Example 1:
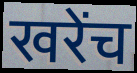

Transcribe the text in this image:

खरेंच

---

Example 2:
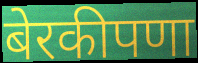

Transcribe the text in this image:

बेरकीपणा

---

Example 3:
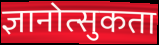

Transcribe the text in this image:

ज्ञानोत्सुकता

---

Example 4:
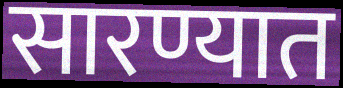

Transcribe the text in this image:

सारण्यात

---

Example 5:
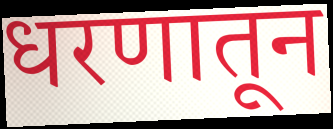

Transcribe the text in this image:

धरणातून